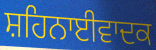
ਸ਼ਹਿਨਾਈਵਾਦਕ